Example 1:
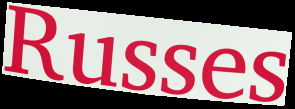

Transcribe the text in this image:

Russes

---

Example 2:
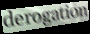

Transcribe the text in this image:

derogation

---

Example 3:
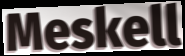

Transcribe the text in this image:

Meskell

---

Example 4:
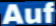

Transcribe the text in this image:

Auf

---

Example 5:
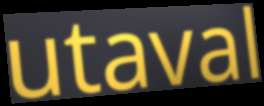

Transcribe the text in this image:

utaval